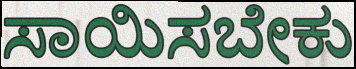
ಸಾಯಿಸಬೇಕು